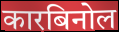
कारबिनोल